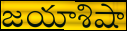
జయాశిషా